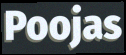
Poojas